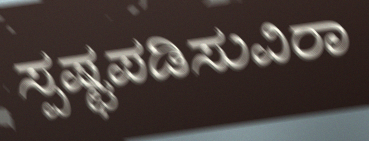
ಸ್ಪಷ್ಟಪಡಿಸುವಿರಾ